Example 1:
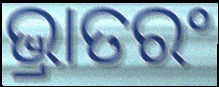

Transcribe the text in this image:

ଭ୍ରାତରଂ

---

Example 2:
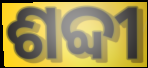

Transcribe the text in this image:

ଶବ୍ଦୀ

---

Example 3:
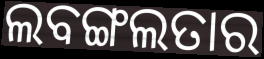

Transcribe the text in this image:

ଲବଙ୍ଗଲତାର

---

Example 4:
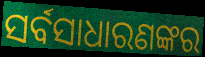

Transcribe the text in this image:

ସର୍ବସାଧାରଣଙ୍କର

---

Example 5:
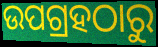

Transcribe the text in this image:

ଉପଗ୍ରହଠାରୁ